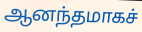
ஆனந்தமாகச்